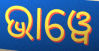
ଭାୱେ